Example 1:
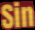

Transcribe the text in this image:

Sin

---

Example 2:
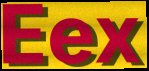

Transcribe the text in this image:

Eex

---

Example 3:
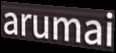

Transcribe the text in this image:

arumai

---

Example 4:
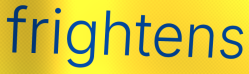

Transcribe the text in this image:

frightens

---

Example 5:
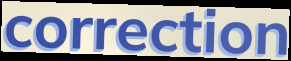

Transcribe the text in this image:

correction